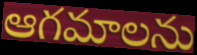
ఆగమాలను